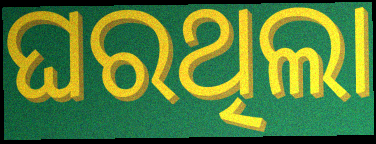
ଘରଥିଲା